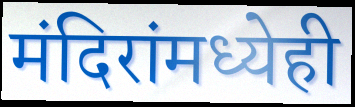
मंदिरांमध्येही